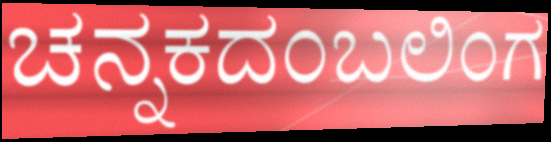
ಚನ್ನಕದಂಬಲಿಂಗ